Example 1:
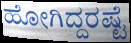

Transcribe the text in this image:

ಹೋಗಿದ್ದರಷ್ಟೆ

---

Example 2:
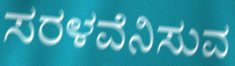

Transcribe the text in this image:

ಸರಳವೆನಿಸುವ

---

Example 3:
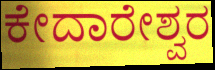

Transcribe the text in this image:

ಕೇದಾರೇಶ್ವರ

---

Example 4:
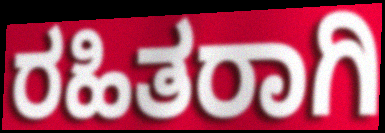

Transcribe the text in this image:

ರಹಿತರಾಗಿ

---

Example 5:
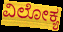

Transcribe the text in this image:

ವಿಲೋಕ್ಯ